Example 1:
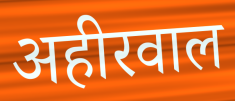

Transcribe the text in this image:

अहीरवाल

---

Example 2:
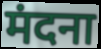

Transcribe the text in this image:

मंदना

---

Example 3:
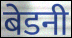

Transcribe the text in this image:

बेडनी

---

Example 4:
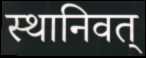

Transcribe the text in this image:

स्थानिवत्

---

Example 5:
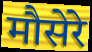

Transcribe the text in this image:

मौसेरे